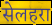
सेलहरा